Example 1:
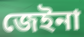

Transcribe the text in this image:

জেইনা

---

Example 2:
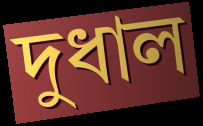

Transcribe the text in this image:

দুধাল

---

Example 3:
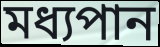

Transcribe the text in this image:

মধ্যপান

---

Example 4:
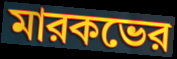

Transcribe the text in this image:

মারকভের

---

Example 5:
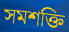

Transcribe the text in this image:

সমশক্তি